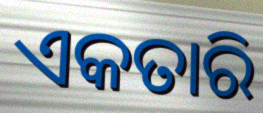
ଏକତାରି